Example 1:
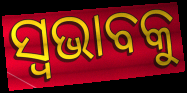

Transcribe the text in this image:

ସ୍ୱଭାବକୁ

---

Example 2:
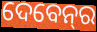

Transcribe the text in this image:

ଦେବେନ୍‌ର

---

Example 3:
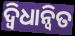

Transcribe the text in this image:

ଦ୍ଵିଧାନ୍ୱିତ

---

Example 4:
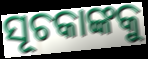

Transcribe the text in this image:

ସୂଚକାଙ୍କକୁ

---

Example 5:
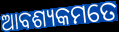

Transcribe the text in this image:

ଆବଶ୍ୟକମତେ